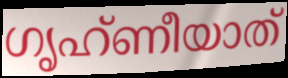
ഗൃഹ്ണീയാത്